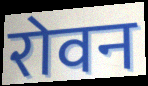
रोवन